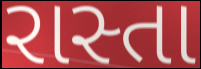
રાસ્તા